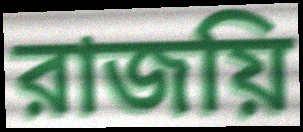
রাজয়ি